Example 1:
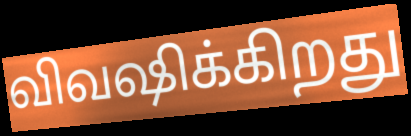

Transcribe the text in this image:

விவஷிக்கிறது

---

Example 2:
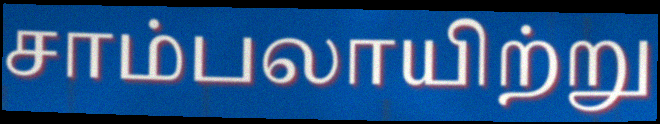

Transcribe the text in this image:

சாம்பலாயிற்று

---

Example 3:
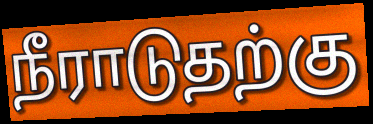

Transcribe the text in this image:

நீராடுதற்கு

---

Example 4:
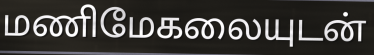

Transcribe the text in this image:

மணிமேகலையுடன்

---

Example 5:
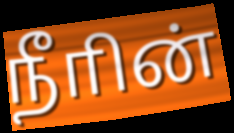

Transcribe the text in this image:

நீரின்